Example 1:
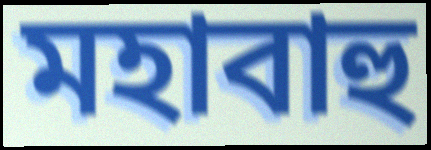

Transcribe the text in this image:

মহাবাহু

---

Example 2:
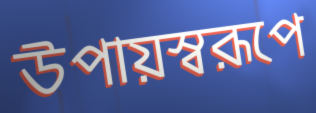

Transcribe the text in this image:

উপায়স্বরূপে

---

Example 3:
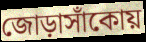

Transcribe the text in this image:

জোড়াসাঁকোয়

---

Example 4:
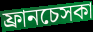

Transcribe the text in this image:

ফ্রানচেসকা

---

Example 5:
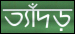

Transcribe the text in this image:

ত্যাঁদড়